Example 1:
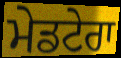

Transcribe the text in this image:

ਮੇਡਟੇਰਾ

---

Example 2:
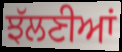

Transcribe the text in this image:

ਝੱਲਣੀਆਂ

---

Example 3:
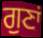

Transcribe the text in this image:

ਗੁਣਾਂ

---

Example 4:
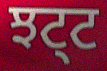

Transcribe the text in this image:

ਝਟ੍ਟ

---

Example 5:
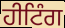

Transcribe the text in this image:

ਹੀਟਿੰਗ